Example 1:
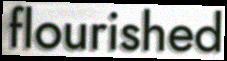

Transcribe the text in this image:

flourished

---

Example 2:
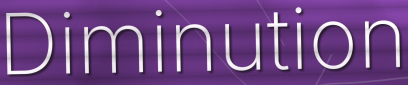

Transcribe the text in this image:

Diminution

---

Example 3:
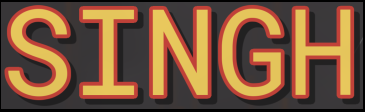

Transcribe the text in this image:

SINGH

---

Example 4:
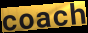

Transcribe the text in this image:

coach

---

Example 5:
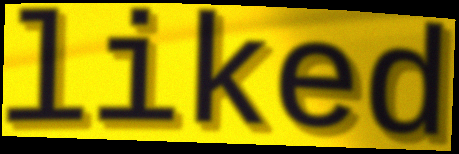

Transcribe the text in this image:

liked